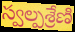
స్వల్పశ్రేణి